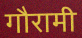
गौरामी